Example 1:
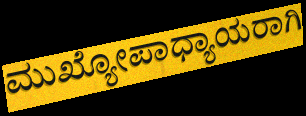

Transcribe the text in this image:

ಮುಖ್ಯೋಪಾಧ್ಯಾಯರಾಗಿ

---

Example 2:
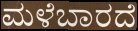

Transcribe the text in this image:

ಮಳೆಬಾರದೆ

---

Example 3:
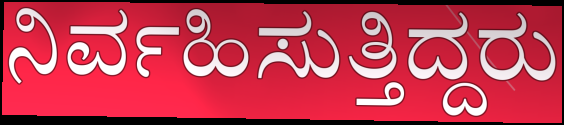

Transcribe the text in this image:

ನಿರ್ವಹಿಸುತ್ತಿದ್ದರು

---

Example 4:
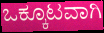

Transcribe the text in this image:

ಒಕ್ಕೂಟವಾಗಿ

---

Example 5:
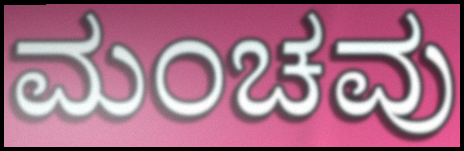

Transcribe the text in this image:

ಮಂಚವು